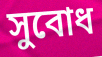
সুবোধ